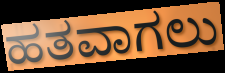
ಹತವಾಗಲು